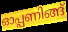
ഓപ്പണിങ്ങ്